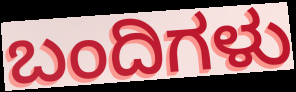
ಬಂದಿಗಳು